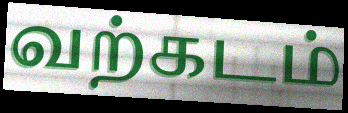
வற்கடம்